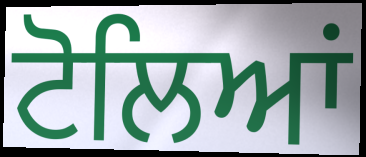
ਟੋਲਿਆਂ